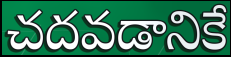
చదవడానికే